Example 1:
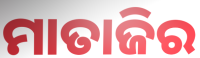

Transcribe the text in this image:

ମାତାଜିର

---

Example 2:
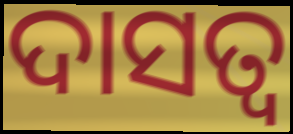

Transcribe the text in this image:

ଦାସତ୍ୱ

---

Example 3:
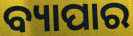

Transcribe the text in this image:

ବ୍ୟାପାର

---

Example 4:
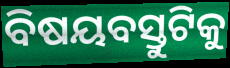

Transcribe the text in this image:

ବିଷୟବସ୍ତୁଟିକୁ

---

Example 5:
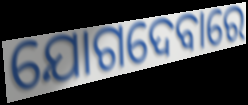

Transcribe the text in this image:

ଯୋଗଦେବାରେ